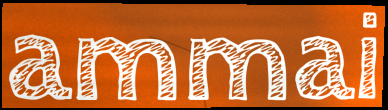
ammai